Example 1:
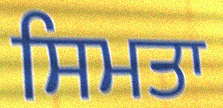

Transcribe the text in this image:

ਸਿਮਤਾ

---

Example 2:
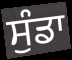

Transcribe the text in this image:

ਸੁੰਡਾ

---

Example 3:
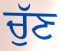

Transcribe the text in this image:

ਚੁੱਣ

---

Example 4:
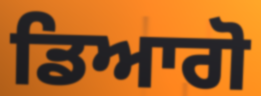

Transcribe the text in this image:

ਡਿਆਗੋ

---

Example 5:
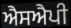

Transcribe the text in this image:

ਐਸਐਪੀ